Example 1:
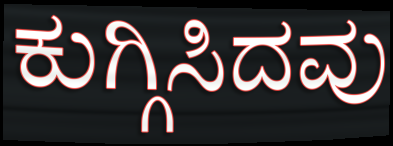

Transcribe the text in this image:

ಕುಗ್ಗಿಸಿದವು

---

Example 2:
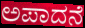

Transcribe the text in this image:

ಅಪಾದನೆ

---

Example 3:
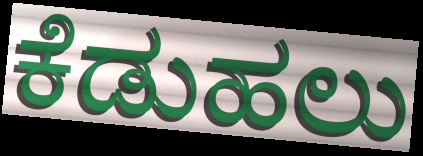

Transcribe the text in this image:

ಕೆಡುಹಲು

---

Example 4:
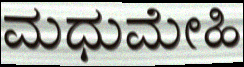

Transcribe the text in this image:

ಮಧುಮೇಹಿ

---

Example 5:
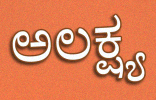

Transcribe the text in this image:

ಅಲಕ್ಷ್ಯ